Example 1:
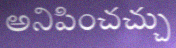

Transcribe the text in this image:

అనిపించచ్చు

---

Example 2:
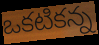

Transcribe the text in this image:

ఒకటికన్న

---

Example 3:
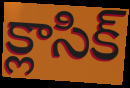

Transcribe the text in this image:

క్లాసిక్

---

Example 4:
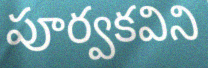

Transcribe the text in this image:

పూర్వకవిని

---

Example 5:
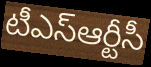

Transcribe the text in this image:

టీఎస్ఆర్టీసీ